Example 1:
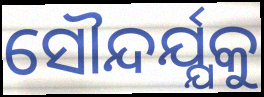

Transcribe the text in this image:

ସୌନ୍ଦର୍ଯ୍ଯକୁ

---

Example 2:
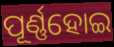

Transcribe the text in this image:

ପୂର୍ଣ୍ଣହୋଇ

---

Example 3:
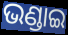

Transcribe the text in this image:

ଭଣ୍ଡାଇ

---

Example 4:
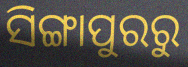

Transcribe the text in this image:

ସିଙ୍ଗାପୁରରୁ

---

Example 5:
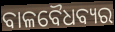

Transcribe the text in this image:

ବାଳବୈଧବ୍ୟର